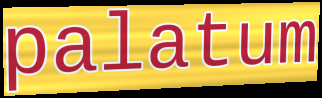
palatum